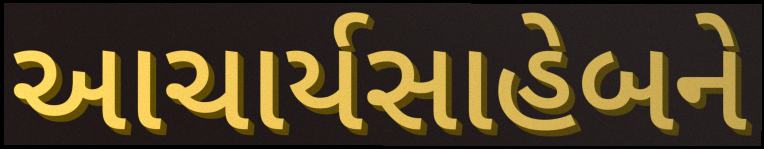
આચાર્યસાહેબને